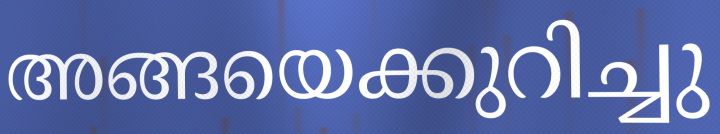
അങ്ങയെക്കുറിച്ചു